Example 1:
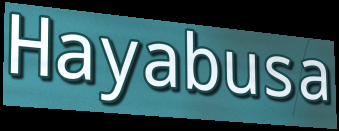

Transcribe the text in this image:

Hayabusa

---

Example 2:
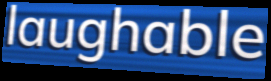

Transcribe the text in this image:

laughable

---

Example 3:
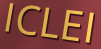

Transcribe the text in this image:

ICLEI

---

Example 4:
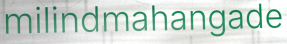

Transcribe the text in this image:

milindmahangade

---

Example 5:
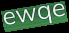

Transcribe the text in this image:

ewqe